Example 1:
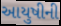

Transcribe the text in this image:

આયુષીની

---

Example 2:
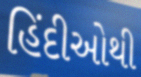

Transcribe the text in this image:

હિંદીઓથી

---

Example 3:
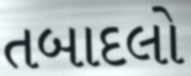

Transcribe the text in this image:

તબાદલો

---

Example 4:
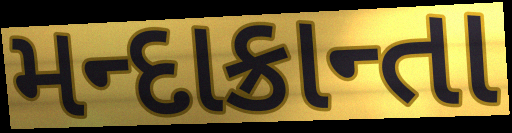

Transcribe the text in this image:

મન્દાક્રાન્તા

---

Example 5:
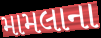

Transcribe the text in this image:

મામલાના